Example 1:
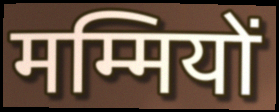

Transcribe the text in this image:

मम्मियों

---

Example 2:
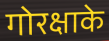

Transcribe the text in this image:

गोरक्षाके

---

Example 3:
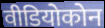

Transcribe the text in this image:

वीडियोकोन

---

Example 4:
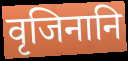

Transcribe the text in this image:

वृजिनानि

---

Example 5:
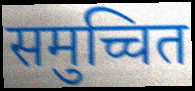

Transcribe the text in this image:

समुच्चित